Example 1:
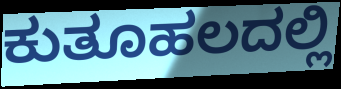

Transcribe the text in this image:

ಕುತೂಹಲದಲ್ಲಿ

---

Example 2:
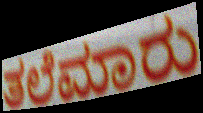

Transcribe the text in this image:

ತಲೆಮಾರು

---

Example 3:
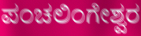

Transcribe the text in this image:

ಪಂಚಲಿಂಗೇಶ್ವರ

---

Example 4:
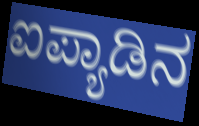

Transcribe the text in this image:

ಐಪ್ಯಾಡಿನ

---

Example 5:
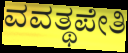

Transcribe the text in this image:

ವವತ್ಥಪೇತಿ